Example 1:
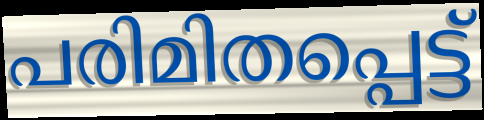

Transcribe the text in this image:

പരിമിതപ്പെട്ട്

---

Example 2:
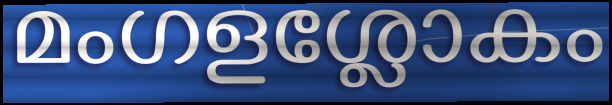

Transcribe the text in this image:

മംഗളശ്ലോകം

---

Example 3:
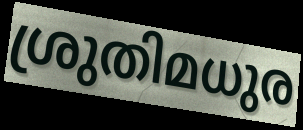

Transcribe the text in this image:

ശ്രുതിമധുര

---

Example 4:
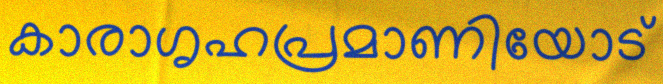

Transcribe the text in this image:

കാരാഗൃഹപ്രമാണിയോട്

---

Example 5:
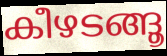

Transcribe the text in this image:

കീഴടങ്ങൂ